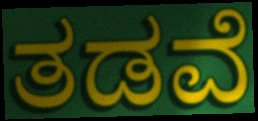
ತಡವೆ